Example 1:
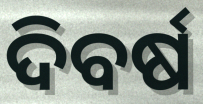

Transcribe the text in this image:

ଦିବର୍ଷ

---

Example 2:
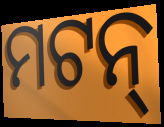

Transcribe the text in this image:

ମଟନ୍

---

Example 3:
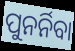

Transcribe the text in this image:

ପୁନର୍ନିବା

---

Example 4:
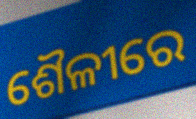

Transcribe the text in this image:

ଶୈଳୀରେ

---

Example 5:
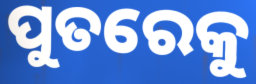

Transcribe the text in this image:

ପୁତରେକୁ